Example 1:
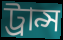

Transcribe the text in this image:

ট্রান্স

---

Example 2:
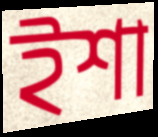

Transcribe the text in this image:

ইশা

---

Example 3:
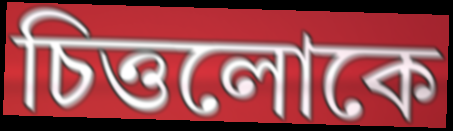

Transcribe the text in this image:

চিত্তলোকে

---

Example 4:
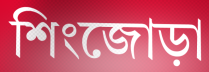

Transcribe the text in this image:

শিংজোড়া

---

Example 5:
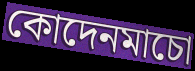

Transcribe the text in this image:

কোদেনমাচো